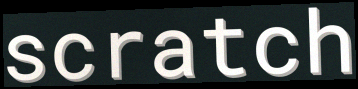
scratch